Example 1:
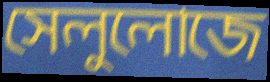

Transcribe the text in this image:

সেলুলোজে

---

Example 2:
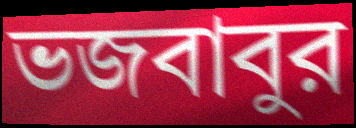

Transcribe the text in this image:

ভজবাবুর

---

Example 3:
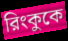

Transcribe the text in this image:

রিংকুকে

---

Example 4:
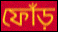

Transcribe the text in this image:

ফোঁড়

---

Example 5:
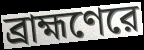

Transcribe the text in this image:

ব্রাহ্মণেরে